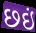
છઇં